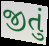
જીતું